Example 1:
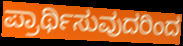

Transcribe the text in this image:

ಪ್ರಾರ್ಥಿಸುವುದರಿಂದ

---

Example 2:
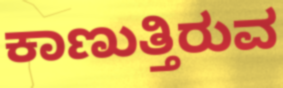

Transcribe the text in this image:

ಕಾಣುತ್ತಿರುವ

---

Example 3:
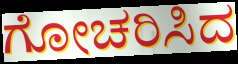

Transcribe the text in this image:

ಗೋಚರಿಸಿದ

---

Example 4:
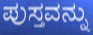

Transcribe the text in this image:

ಪುಸ್ತವನ್ನು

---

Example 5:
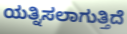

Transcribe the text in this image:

ಯತ್ನಿಸಲಾಗುತ್ತಿದೆ